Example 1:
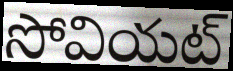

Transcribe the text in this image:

సోవియట్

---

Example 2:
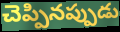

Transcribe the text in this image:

చెప్పినప్పుడు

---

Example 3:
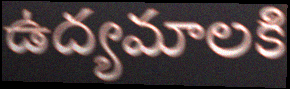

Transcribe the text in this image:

ఉద్యమాలకి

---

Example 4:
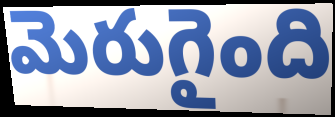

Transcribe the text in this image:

మెరుగైంది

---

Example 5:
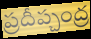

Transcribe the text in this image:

ప్రదీప్చంద్ర